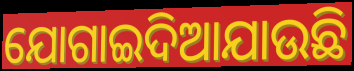
ଯୋଗାଇଦିଆଯାଉଛି